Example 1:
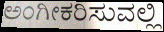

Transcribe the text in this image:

ಅಂಗೀಕರಿಸುವಲ್ಲಿ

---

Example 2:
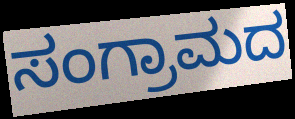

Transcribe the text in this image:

ಸಂಗ್ರಾಮದ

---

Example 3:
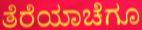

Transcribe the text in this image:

ತೆರೆಯಾಚೆಗೂ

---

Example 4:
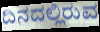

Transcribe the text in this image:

ದಿನದಲ್ಲಿರುವ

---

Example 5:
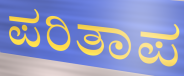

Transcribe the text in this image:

ಪರಿತಾಪ